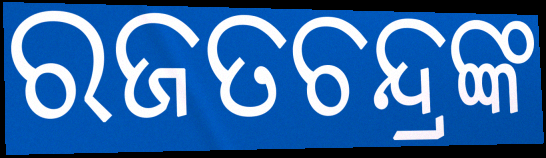
ରଜତଚନ୍ଦ୍ରଙ୍କ